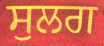
ਸੁਲਗ